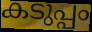
കടുപ്പം